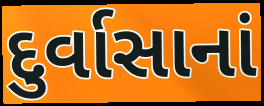
દુર્વાસાનાં